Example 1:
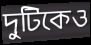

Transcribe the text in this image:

দুটিকেও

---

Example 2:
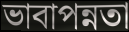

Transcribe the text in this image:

ভাবাপন্নতা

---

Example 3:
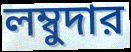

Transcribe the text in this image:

লম্বুদার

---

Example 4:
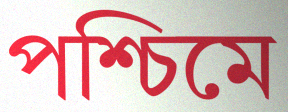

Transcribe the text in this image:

পশ্চিমে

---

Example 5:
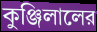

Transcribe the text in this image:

কুঞ্জিলালের